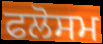
ਫਲੋਸਮ